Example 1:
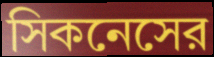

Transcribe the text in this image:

সিকনেসের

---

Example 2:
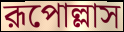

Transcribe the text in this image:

রূপোল্লাস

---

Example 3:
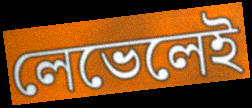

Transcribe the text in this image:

লেভেলেই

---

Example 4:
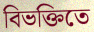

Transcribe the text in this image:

বিভক্তিতে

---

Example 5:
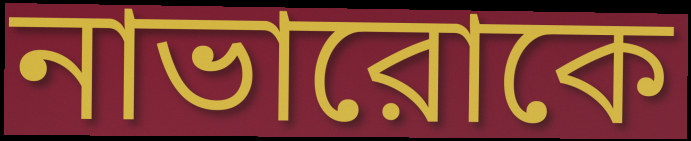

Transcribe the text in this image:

নাভারোকে